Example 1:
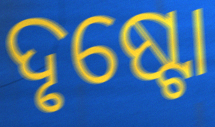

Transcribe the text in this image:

ଦୃଷ୍ଟୋ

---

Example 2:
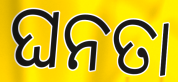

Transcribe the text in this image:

ଘନତା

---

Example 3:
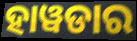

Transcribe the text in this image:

ହାୱଡାର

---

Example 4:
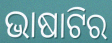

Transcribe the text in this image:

ଭାଷାଟିର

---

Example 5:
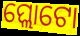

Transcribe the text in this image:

ପ୍ଲୋଟୋ